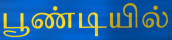
பூண்டியில்